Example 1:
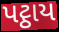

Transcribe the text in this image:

પટ્ઠાય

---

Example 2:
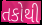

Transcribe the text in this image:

તકોથી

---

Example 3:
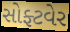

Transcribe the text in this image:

સોફ્ટવેર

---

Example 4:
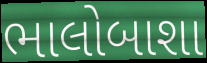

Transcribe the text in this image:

ભાલોબાશા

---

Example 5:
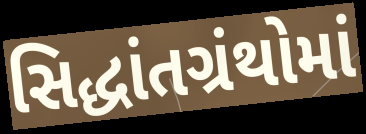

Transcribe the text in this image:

સિદ્ધાંતગ્રંથોમાં